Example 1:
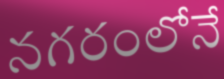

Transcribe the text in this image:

నగరంలోనే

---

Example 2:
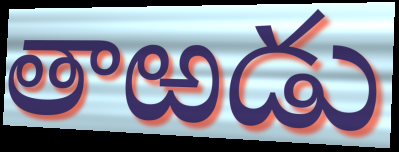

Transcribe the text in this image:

తాఱడు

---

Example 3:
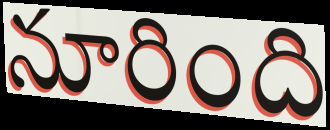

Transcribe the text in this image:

నూరింది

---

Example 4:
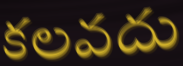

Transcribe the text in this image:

కలవదు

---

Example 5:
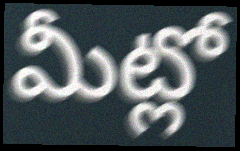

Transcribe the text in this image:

మీట్లో